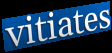
vitiates